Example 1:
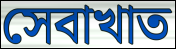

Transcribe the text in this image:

সেবাখাত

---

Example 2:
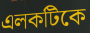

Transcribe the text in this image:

এলকটিকে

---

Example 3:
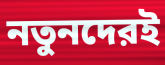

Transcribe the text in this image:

নতুনদেরই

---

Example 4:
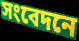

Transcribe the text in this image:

সংবেদনে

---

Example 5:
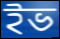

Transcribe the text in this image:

ইভ